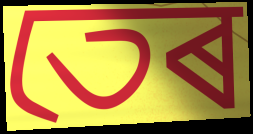
তেৰ